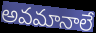
అవమానాలే